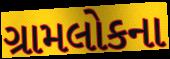
ગ્રામલોકના